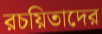
রচয়িতাদের